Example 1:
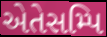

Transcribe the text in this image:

એતેસમ્પિ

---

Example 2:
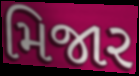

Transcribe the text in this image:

મિજાર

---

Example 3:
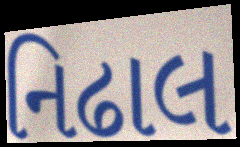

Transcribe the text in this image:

નિઢાલ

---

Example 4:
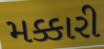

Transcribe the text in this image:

મક્કારી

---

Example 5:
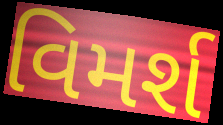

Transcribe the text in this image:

વિમર્શ